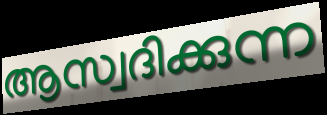
ആസ്വദിക്കുന്ന